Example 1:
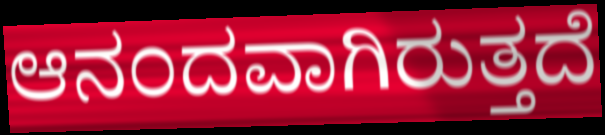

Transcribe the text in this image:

ಆನಂದವಾಗಿರುತ್ತದೆ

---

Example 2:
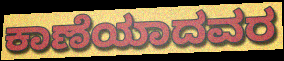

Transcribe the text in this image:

ಕಾಣೆಯಾದವರ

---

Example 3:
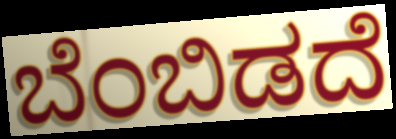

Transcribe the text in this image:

ಬೆಂಬಿಡದೆ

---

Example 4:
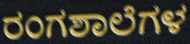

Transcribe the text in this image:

ರಂಗಶಾಲೆಗಳ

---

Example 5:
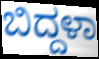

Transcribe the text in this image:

ಬಿದ್ದಳಾ